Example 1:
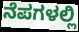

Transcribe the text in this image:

ನೆಪಗಳಲ್ಲಿ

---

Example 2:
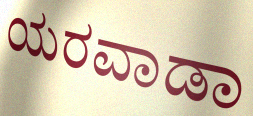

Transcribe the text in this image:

ಯರವಾಡಾ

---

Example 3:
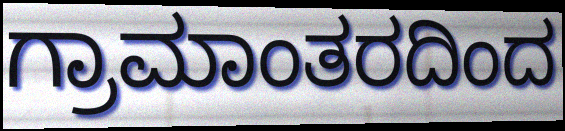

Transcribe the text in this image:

ಗ್ರಾಮಾಂತರದಿಂದ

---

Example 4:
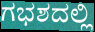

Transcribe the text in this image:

ಗಭಶದಲ್ಲಿ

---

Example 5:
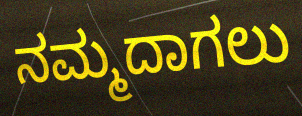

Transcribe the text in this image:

ನಮ್ಮದಾಗಲು